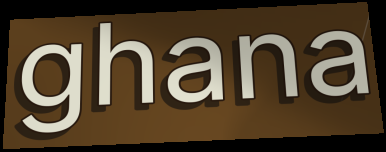
ghana